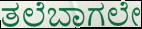
ತಲೆಬಾಗಲೇ